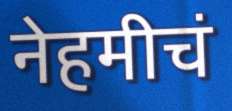
नेहमीचं